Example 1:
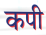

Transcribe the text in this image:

कपी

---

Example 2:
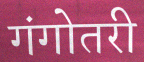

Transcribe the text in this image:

गंगोतरी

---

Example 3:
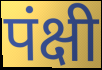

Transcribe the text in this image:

पंक्षी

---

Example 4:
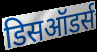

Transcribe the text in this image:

डिसऑडर्स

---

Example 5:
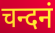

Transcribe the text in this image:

चन्दनं